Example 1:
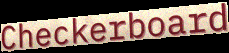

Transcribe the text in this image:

Checkerboard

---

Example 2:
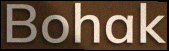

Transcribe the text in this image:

Bohak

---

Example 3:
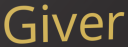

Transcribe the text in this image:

Giver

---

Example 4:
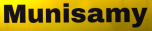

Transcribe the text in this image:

Munisamy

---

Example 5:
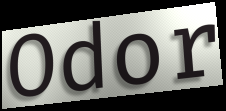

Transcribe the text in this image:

Odor